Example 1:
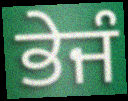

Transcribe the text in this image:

ਭੇਜੰ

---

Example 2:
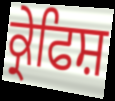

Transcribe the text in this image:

ਕ੍ਰੇਫਿਸ਼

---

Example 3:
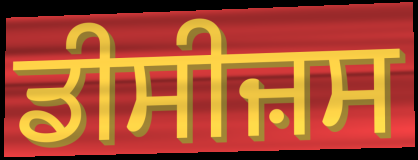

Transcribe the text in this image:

ਡੀਸੀਜ਼ਸ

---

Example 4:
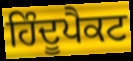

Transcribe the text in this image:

ਹਿੰਦੂਪੈਕਟ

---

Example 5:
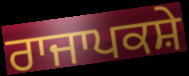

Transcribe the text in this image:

ਰਾਜਾਪਕਸ਼ੇ